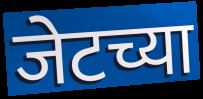
जेटच्या